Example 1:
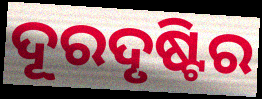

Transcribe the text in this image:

ଦୂରଦୃଷ୍ଟିର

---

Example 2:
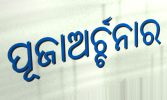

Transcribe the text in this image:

ପୂଜାଅର୍ଚ୍ଚନାର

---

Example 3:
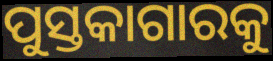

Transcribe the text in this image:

ପୁସ୍ତକାଗାରକୁ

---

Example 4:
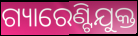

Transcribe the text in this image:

ଗ୍ୟାରେଣ୍ଟିଯୁକ୍ତ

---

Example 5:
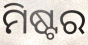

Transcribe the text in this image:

ମିଷ୍ଟର